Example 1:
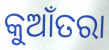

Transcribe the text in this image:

କୁଆଁତରା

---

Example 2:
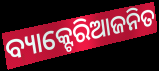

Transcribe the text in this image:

ବ୍ୟାକ୍ଟେରିଆଜନିତ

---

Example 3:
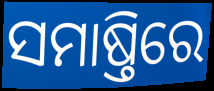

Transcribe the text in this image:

ସମାଷ୍ତିରେ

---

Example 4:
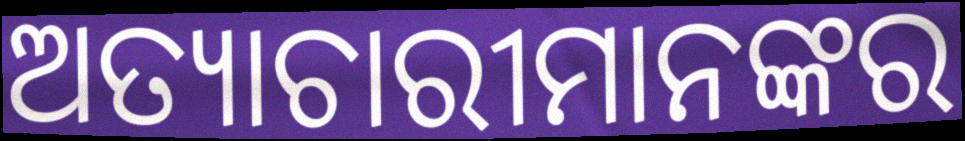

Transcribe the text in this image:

ଅତ୍ୟାଚାରୀମାନଙ୍କର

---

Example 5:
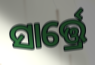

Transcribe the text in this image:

ସାର୍ତ୍ତ୍ରେ